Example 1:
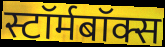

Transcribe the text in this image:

स्टॉर्मबॉक्स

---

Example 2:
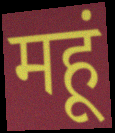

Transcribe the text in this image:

महूं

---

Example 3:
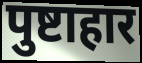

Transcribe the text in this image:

पुष्टाहार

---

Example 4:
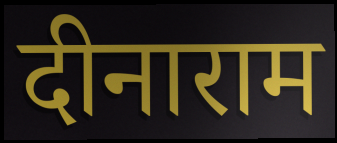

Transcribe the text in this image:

दीनाराम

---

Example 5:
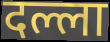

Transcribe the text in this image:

दल्ला